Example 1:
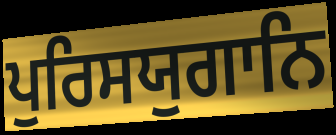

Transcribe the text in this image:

ਪੁਰਿਸਯੁਗਾਨਿ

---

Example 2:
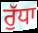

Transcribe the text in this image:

ਰੁੱਧਾ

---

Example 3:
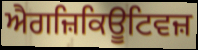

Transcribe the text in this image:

ਐਗਜ਼ਿਕਿਊਟਿਵਜ਼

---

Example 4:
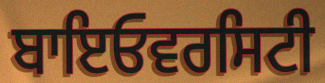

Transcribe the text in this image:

ਬਾਇਓਵਰਸਿਟੀ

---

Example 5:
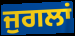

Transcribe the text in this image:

ਜੁਗਲਾਂ